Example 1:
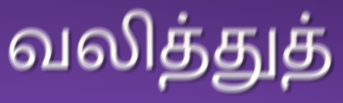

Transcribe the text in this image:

வலித்துத்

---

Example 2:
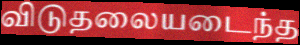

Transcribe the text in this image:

விடுதலையடைந்த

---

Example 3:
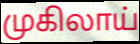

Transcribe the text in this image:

முகிலாய்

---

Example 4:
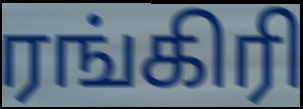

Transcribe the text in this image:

ரங்கிரி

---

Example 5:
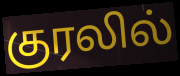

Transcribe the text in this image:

குரலில்